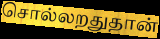
சொல்லறதுதான்